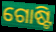
ଗୋଷ୍ଟି